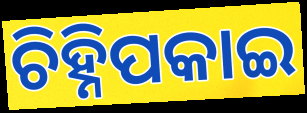
ଚିହ୍ନିପକାଇ